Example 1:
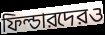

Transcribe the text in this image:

ফিল্ডারদেরও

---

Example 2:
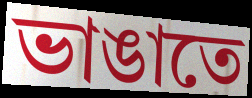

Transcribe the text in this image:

ভাঙাতে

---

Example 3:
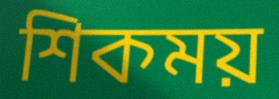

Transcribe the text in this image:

শিকময়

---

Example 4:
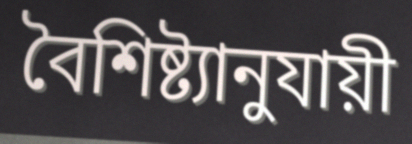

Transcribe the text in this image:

বৈশিষ্ট্যানুযায়ী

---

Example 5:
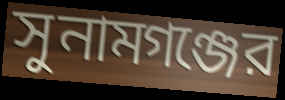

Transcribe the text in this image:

সুনামগঞ্জের